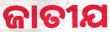
ଜାତୀଯ